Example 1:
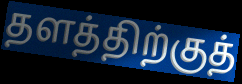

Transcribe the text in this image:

தளத்திற்குத்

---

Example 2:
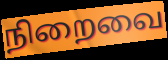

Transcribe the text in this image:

நிறைவை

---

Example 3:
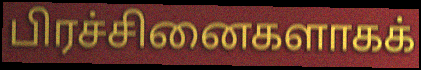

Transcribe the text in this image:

பிரச்சினைகளாகக்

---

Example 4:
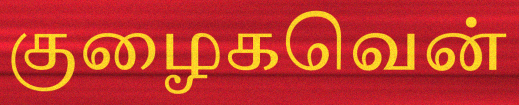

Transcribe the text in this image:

குழைகவென்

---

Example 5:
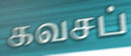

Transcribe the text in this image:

கவசப்